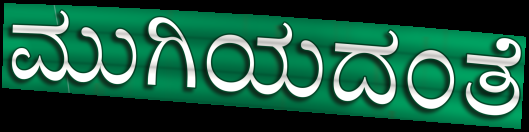
ಮುಗಿಯದಂತೆ